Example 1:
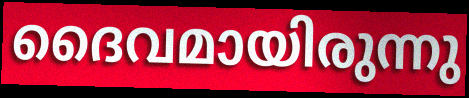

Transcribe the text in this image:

ദൈവമായിരുന്നു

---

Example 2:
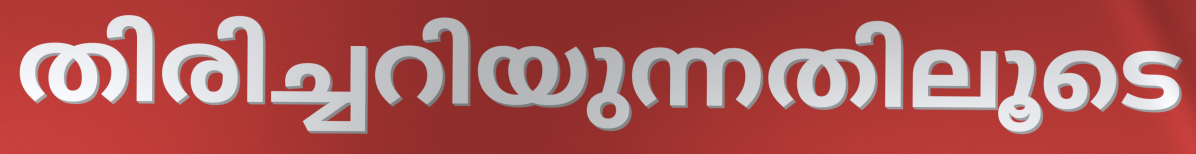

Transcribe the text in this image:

തിരിച്ചറിയുന്നതിലൂടെ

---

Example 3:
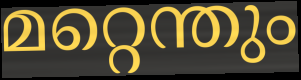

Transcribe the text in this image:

മറ്റെന്തും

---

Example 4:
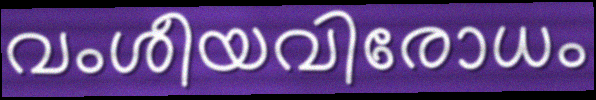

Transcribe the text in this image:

വംശീയവിരോധം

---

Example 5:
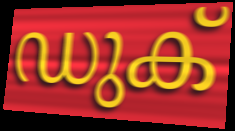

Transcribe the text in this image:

ഡുക്